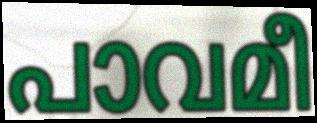
പാവമീ